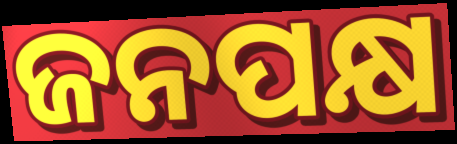
ଜନପକ୍ଷ